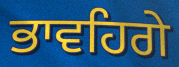
ਭਾਵਹਿਗੇ